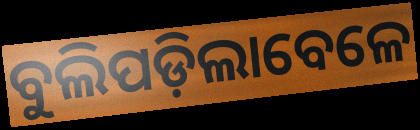
ବୁଲିପଡ଼ିଲାବେଳେ